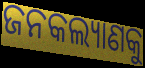
ଜନକଲ୍ୟାଣକୁ